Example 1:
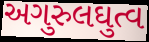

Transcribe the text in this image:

અગુરુલઘુત્વ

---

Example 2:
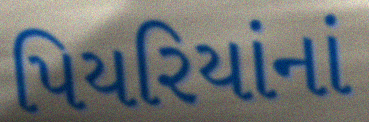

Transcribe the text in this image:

પિયરિયાંનાં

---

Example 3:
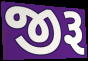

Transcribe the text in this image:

જીરૂ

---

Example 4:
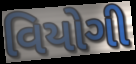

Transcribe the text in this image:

વિયોગી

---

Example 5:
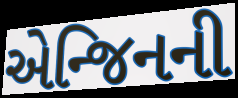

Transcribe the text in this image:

એન્જિનની